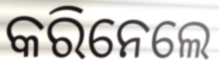
କରିନେଲେ